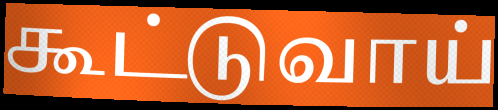
கூட்டுவாய்